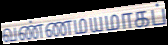
வண்ணமயமாகப்